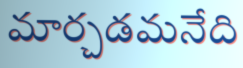
మార్చడమనేది